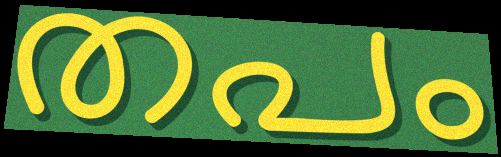
തപം